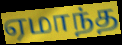
ஏமாந்த